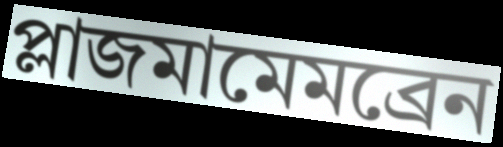
প্লাজমামেমব্রেন